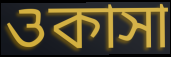
ওকাসা